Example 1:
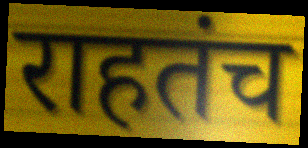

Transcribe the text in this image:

राहतंच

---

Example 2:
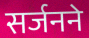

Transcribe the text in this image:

सर्जनने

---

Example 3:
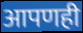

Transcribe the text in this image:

आपणही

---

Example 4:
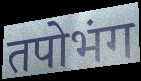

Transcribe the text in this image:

तपोभंग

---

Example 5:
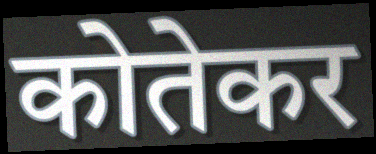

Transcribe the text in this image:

कोतेकर